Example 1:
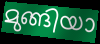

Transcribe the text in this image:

മുങ്ങിയാ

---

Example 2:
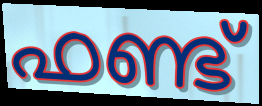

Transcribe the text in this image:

ഫണ്ട്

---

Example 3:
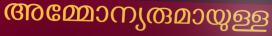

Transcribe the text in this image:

അമ്മോന്യരുമായുള്ള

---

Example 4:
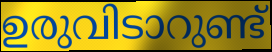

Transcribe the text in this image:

ഉരുവിടാറുണ്ട്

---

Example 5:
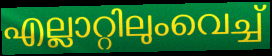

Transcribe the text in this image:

എല്ലാറ്റിലുംവെച്ച്